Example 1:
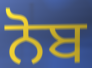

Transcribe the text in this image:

ਨੋਬ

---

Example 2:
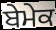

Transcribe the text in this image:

ਬੇਮੇਕ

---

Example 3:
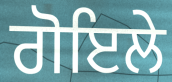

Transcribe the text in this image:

ਗੋਇਲੇ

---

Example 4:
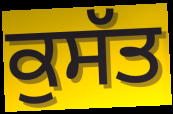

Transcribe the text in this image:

ਕੁਸੱਤ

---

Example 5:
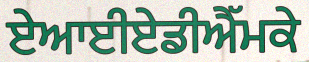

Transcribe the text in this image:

ਏਆਈਏਡੀਐੱਮਕੇ